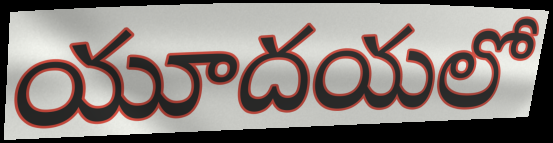
యూదయలో